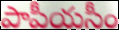
పాపీయసీం